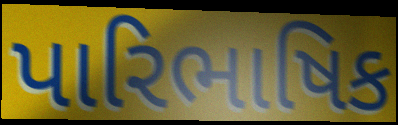
પારિભાષિક